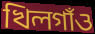
খিলগাঁও